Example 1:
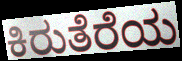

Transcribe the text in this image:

ಕಿರುತೆರೆಯ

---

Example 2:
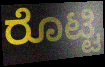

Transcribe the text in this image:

ರೊಟ್ಟಿ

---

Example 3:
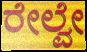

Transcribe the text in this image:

ರೇಲ್ವೇ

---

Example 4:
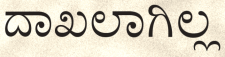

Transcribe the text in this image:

ದಾಖಲಾಗಿಲ್ಲ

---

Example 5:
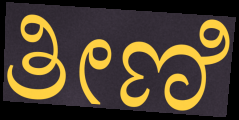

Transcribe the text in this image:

ತೀಣಿ